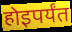
होइपर्यंत